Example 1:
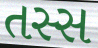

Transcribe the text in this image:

તસ્સ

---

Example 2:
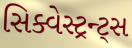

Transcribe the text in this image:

સિક્વેસ્ટ્રન્ટ્સ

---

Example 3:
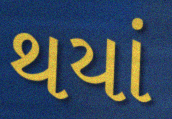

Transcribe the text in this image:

થયાં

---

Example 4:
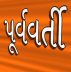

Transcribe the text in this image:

પૂર્વવર્તી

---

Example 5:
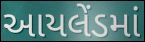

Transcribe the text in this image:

આયલેંડમાં